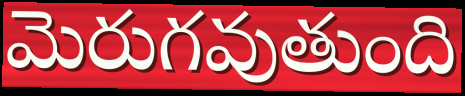
మెరుగవుతుంది